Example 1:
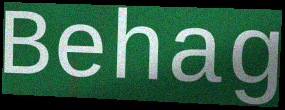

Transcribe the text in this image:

Behag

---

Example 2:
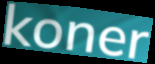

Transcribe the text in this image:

koner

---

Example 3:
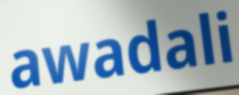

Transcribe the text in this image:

awadali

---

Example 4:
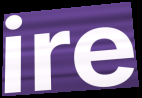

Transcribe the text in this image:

ire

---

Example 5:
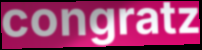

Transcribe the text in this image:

congratz